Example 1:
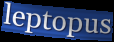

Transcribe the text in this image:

leptopus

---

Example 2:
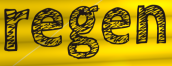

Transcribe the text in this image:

regen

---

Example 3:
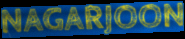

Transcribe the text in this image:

NAGARJOON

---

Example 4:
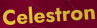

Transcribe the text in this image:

Celestron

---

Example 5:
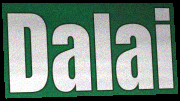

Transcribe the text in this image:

Dalai